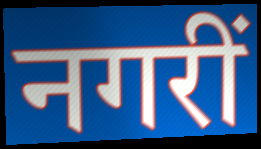
नगरीं